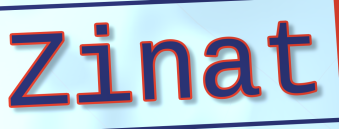
Zinat